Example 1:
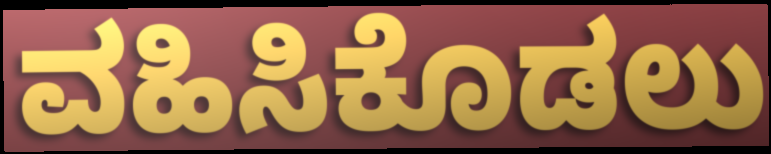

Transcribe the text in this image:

ವಹಿಸಿಕೊಡಲು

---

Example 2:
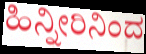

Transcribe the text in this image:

ಹಿನ್ನೀರಿನಿಂದ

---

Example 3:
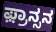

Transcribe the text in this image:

ಫ಼್ರಾನ್ಸನ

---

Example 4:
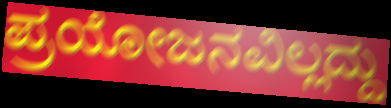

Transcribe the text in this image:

ಪ್ರಯೋಜನವಿಲ್ಲದ್ದು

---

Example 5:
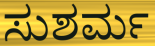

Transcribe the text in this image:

ಸುಶರ್ಮ